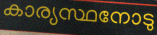
കാര്യസ്ഥനോടു